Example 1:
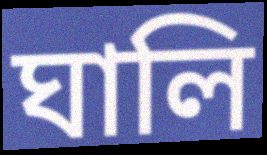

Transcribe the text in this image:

ঘালি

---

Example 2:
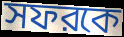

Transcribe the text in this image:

সফরকে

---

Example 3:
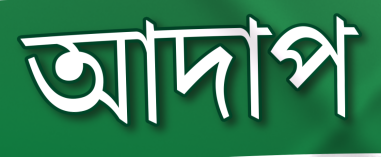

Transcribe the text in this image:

আদাপ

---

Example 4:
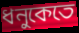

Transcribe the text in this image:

ধনুকেতে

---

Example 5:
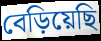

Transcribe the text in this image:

বেড়িয়েছি